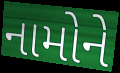
નામોને